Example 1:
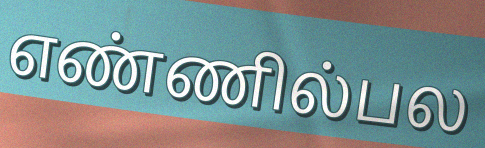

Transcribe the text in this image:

எண்ணில்பல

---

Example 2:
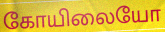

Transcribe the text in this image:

கோயிலையோ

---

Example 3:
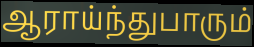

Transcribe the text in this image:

ஆராய்ந்துபாரும்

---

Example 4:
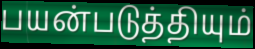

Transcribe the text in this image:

பயன்படுத்தியும்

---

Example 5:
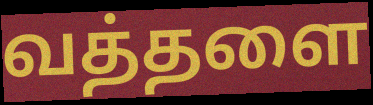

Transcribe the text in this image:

வத்தளை